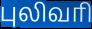
புலிவரி